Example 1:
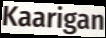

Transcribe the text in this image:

Kaarigan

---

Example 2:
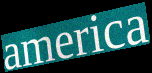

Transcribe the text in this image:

america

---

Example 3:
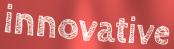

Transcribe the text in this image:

innovative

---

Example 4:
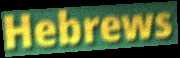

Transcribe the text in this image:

Hebrews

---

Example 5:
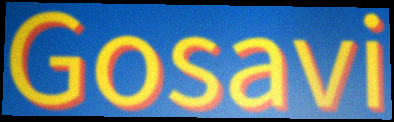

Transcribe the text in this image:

Gosavi